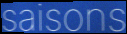
saisons